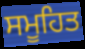
ਸਮੂਹਿਤ